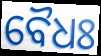
ବୈଧଃ